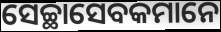
ସେଚ୍ଛାସେବକମାନେ